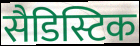
सैडिस्टिक